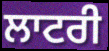
ਲਾਟਰੀ